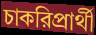
চাকরিপ্রার্থী